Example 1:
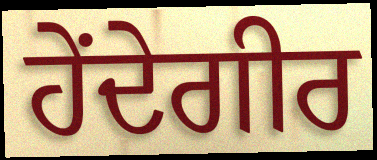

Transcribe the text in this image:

ਹੇਂਦੇਗੀਰ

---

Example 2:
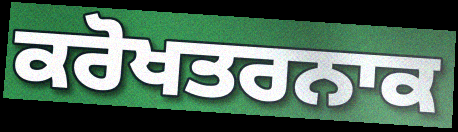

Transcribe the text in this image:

ਕਰੋਖਤਰਨਾਕ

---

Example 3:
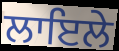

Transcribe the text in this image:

ਲਾਇਲੇ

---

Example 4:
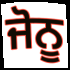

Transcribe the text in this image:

ਜੋਨੂ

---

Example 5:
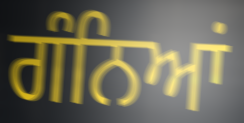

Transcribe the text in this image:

ਗੰਨਿਆਂ